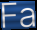
Fa